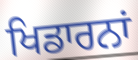
ਖਿਡਾਰਨਾਂ